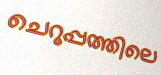
ചെറുപ്പത്തിലെ